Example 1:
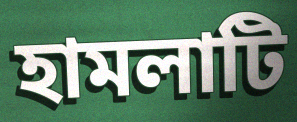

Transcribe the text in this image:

হামলাটি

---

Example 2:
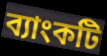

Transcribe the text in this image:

ব্যাংকটি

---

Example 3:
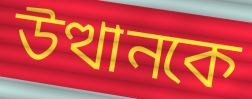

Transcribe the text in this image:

উত্থানকে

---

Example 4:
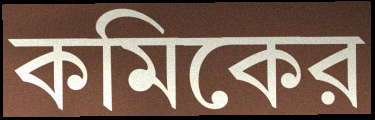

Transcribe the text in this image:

কমিকের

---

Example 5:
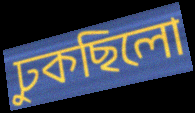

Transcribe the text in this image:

ঢুকছিলো